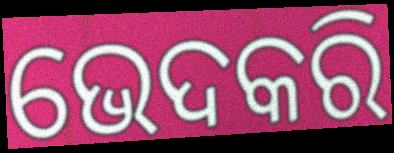
ଭେଦକରି